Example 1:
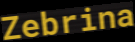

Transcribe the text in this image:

Zebrina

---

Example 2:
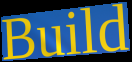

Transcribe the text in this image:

Build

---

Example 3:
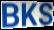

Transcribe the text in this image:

BKS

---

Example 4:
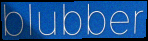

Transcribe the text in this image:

blubber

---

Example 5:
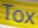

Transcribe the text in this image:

Tox